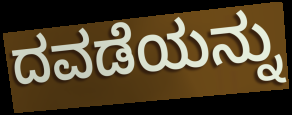
ದವಡೆಯನ್ನು